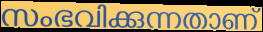
സംഭവിക്കുന്നതാണ്